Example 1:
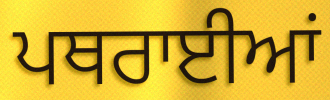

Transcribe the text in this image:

ਪਥਰਾਈਆਂ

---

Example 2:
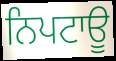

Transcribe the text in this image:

ਨਿਪਟਾਊ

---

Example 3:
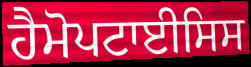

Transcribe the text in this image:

ਹੈਮੋਪਟਾਈਸਿਸ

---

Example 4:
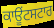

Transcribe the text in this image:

ਕਾਊਂਟਸਟਾਰ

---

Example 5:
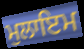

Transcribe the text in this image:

ਮੁਲਾਇਮ